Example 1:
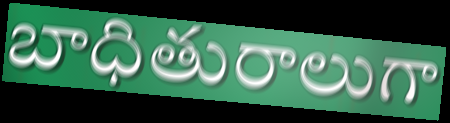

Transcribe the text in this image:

బాధితురాలుగా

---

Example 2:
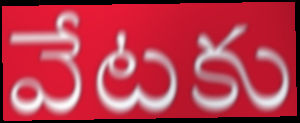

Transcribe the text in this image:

వేటకు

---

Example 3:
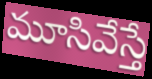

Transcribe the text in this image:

మూసివేస్తే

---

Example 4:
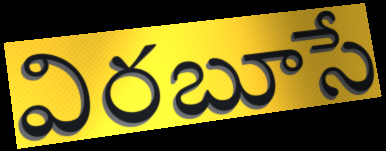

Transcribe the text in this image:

విరబూసే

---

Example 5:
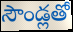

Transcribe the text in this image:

సౌండ్లతో